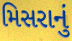
મિસરાનું